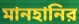
মানহানির